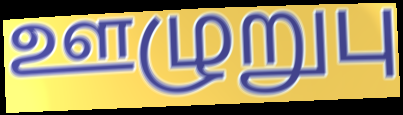
ஊழுறுபு